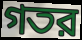
গতর